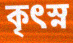
কৃৎস্ন